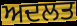
ਅਦਲਤ